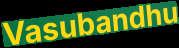
Vasubandhu